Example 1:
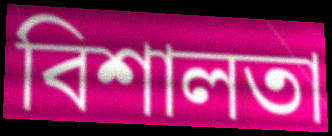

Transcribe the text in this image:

বিশালতা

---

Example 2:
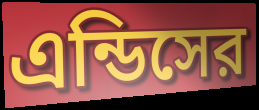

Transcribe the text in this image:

এন্ডিসের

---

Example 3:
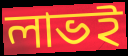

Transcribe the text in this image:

লাভই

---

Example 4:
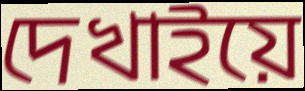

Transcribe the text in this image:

দেখাইয়ে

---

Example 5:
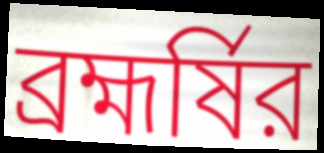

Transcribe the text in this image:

ব্রহ্মর্ষির